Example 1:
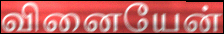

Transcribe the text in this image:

வினையேன்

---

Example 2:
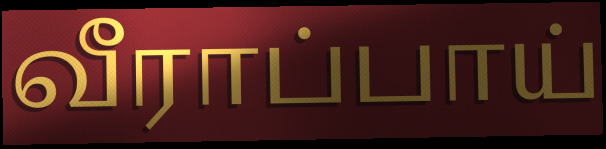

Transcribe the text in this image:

வீராப்பாய்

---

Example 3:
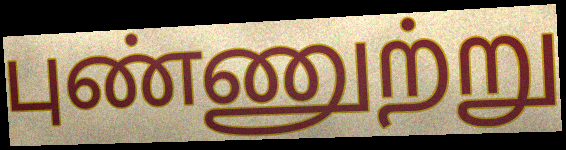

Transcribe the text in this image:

புண்ணுற்று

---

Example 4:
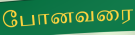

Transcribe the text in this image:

போனவரை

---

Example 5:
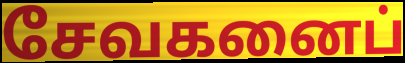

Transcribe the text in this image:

சேவகனைப்